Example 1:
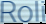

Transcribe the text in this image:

Roli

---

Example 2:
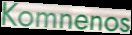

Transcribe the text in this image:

Komnenos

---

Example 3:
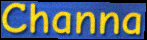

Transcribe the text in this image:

Channa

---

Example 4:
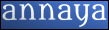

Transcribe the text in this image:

annaya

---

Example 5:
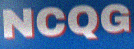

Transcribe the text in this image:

NCQG